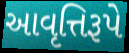
આવૃત્તિરૂપે